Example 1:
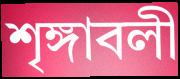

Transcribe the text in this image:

শৃঙ্গাবলী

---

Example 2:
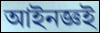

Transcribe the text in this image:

আইনজ্ঞই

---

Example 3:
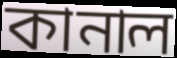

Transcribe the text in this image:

কানাল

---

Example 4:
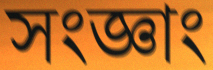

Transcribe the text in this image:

সংজ্ঞাং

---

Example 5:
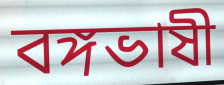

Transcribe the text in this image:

বঙ্গভাষী